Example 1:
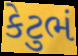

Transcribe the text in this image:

કેટુભં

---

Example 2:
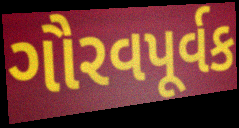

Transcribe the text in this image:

ગૌરવપૂર્વક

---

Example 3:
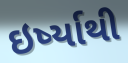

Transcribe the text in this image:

ઇર્ષ્યાથી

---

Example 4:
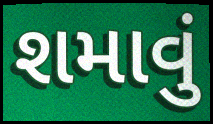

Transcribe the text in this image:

શમાવું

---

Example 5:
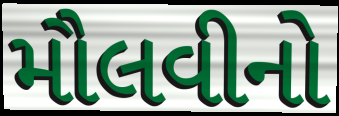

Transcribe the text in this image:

મૌલવીનો